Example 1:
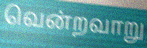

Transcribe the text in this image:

வென்றவாறு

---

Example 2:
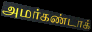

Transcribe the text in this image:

அமர்கண்டாக்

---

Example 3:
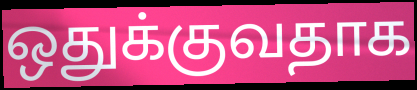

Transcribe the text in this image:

ஒதுக்குவதாக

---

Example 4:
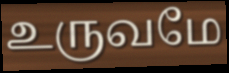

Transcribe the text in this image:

உருவமே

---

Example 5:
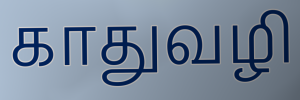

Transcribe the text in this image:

காதுவழி